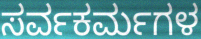
ಸರ್ವಕರ್ಮಗಳ